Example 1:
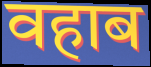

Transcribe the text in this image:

वहाब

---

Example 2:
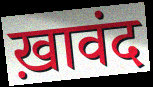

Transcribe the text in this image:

ख़ावंद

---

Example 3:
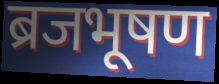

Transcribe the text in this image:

ब्रजभूषण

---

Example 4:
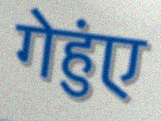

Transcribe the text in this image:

गेहुंए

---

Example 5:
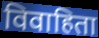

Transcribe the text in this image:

विवाहिता